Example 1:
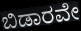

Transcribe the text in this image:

ಬಿಡಾರವೇ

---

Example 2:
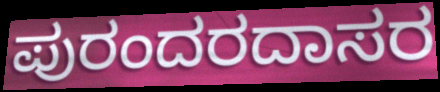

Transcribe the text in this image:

ಪುರಂದರದಾಸರ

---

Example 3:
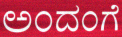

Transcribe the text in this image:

ಅಂದಂಗೆ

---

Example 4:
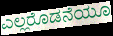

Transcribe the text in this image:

ಎಲ್ಲರೊಡನೆಯೂ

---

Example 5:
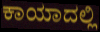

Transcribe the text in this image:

ಕಾಯಾದಲ್ಲಿ